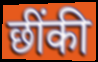
छींकी